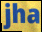
jha